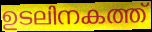
ഉടലിനകത്ത്